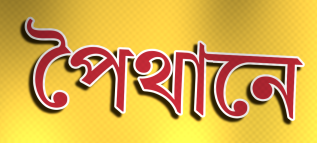
পৈথানে